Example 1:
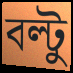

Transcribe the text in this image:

বল্টু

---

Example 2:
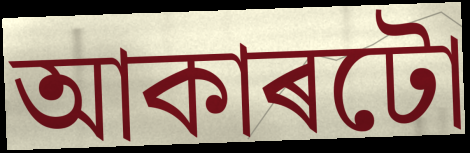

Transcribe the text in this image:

আকাৰটো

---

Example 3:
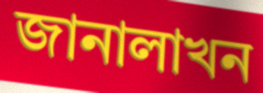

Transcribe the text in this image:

জানালাখন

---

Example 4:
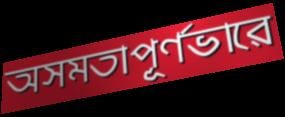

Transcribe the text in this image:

অসমতাপূৰ্ণভাৱে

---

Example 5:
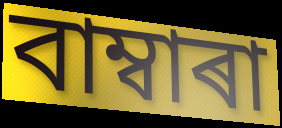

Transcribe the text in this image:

বাম্বাৰা